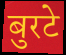
बुरटे